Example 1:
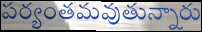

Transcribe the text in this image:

పర్యంతమవుతున్నారు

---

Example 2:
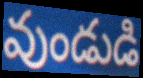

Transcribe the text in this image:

వుండుడి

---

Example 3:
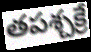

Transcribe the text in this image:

తపశ్చక్రే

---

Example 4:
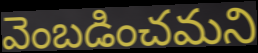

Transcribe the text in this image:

వెంబడించమని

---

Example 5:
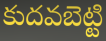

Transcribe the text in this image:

కుదవబెట్టి